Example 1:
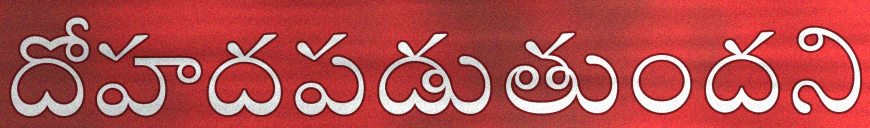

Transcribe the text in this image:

దోహదపడుతుందని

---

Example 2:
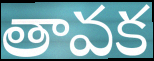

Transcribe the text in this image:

తావక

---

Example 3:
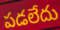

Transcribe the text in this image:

పడలేదు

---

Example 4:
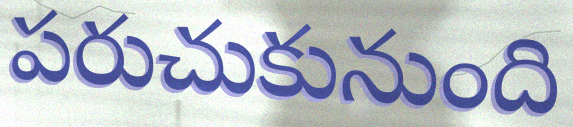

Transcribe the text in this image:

పరుచుకునుంది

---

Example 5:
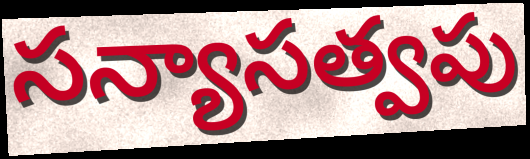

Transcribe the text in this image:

సన్యాసత్వపు